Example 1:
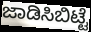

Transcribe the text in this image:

ಜಾಡಿಸಿಬಿಟ್ಟೆ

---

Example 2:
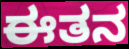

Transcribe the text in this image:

ಈತನ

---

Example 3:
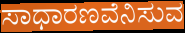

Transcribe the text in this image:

ಸಾಧಾರಣವೆನಿಸುವ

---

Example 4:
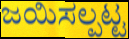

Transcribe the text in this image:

ಜಯಿಸಲ್ಪಟ್ಟ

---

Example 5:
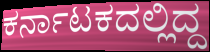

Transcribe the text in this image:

ಕರ್ನಾಟಕದಲ್ಲಿದ್ದ